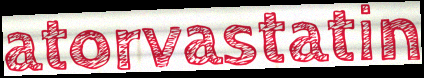
atorvastatin